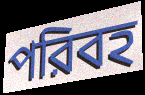
পরিবহ